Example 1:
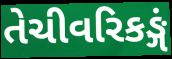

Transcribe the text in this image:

તેચીવરિકઙ્ગં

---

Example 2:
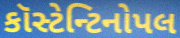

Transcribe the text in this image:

કૉસ્ટેન્ટિનોપલ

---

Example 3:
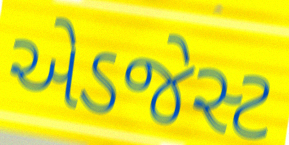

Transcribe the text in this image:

એડજેસ્ટ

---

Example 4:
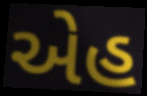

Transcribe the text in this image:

એહ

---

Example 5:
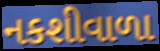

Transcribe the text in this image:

નકશીવાળા